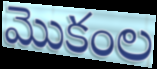
మొకంల